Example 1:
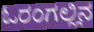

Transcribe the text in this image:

ಓರಂಗಲ್ಲಿನ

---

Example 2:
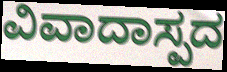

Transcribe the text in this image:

ವಿವಾದಾಸ್ಪದ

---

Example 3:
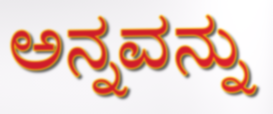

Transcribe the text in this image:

ಅನ್ನವನ್ನು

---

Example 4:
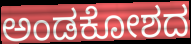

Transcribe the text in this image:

ಅಂಡಕೋಶದ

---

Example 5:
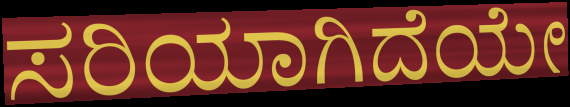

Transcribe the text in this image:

ಸರಿಯಾಗಿದೆಯೇ